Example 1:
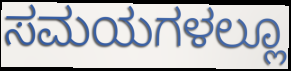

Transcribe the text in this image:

ಸಮಯಗಳಲ್ಲೂ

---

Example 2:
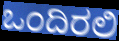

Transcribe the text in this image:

ಒಂದಿರಲಿ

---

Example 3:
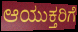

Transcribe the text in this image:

ಆಯುಕ್ತರಿಗೆ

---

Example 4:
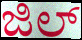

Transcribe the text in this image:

ಜಿಲ್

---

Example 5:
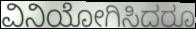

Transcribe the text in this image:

ವಿನಿಯೋಗಿಸಿದರೂ